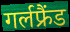
गर्लफ्रैंड